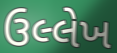
ઉલ્લેખ